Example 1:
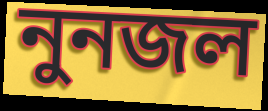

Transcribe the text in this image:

নুনজল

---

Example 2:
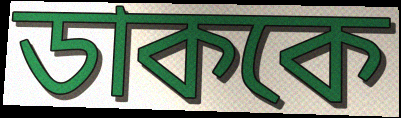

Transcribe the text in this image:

ডাককে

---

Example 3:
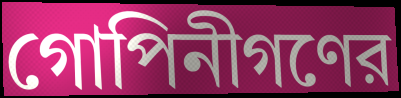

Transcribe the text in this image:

গোপিনীগণের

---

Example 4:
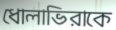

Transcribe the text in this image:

ধোলাভিরাকে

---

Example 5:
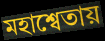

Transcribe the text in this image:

মহাশ্বেতায়